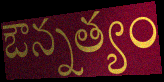
ఔన్నత్యం